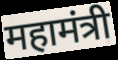
महामंत्री